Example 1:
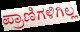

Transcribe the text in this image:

ಪ್ರಾಣಿಗಳಿಗಿಲ್ಲ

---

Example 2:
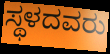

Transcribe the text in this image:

ಸ್ಥಳದವರು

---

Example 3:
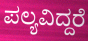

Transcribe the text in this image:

ಪಲ್ಯವಿದ್ದರೆ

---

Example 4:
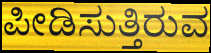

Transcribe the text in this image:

ಪೀಡಿಸುತ್ತಿರುವ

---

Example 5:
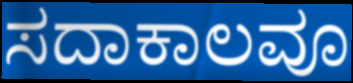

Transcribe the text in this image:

ಸದಾಕಾಲವೂ